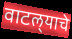
वाटल्याचे